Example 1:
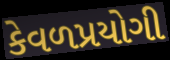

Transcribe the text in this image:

કેવળપ્રયોગી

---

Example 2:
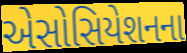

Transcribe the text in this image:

એસોસિયેશનના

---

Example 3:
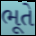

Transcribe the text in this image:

ભૂતે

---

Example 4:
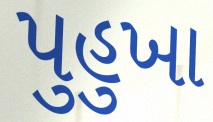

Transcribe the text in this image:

પુહુખા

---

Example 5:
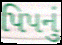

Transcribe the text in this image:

પિપનું